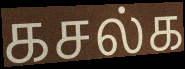
கசல்க